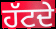
ਹੱਟਦੇ